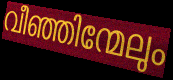
വീഞ്ഞിന്മേലും